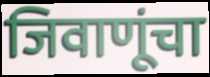
जिवाणूंचा